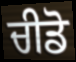
ਚੀਡੋ